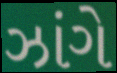
ઝાંગે